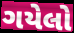
ગયેલો